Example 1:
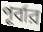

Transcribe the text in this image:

পূর্বার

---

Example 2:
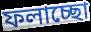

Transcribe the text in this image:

ফলাচ্ছো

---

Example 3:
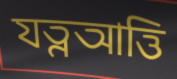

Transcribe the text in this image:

যত্নআত্তি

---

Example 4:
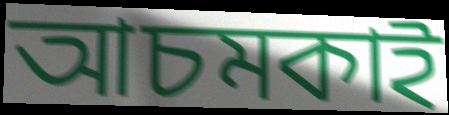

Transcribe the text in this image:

আচমকাই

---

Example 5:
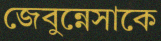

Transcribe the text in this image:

জেবুন্নেসাকে